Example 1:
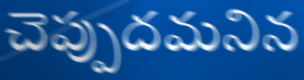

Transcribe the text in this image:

చెప్పుదమనిన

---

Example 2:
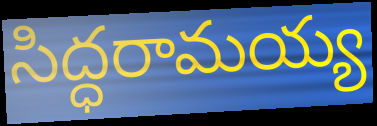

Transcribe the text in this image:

సిద్ధరామయ్య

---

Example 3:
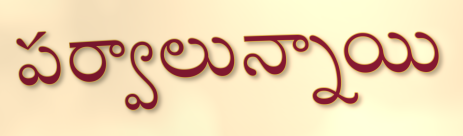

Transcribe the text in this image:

పర్వాలున్నాయి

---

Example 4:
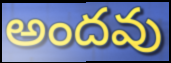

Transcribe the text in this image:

అందవు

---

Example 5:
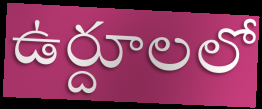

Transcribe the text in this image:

ఉర్దూలలో